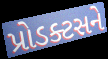
પ્રોડક્ટસને